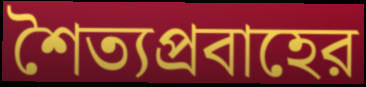
শৈত্যপ্রবাহের